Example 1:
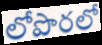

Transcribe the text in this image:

లోపొరలో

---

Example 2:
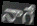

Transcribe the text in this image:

నాగే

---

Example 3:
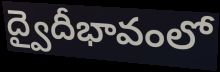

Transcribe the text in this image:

ద్వైదీభావంలో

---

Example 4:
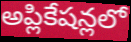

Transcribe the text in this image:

అప్లికేషన్లలో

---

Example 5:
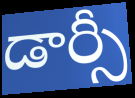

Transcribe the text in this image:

డార్సీ